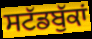
ਸਟੱਡਬੁੱਕਾਂ